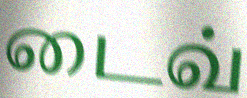
டைவ்